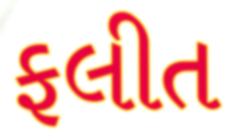
ફલીત